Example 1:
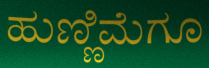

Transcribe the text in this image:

ಹುಣ್ಣಿಮೆಗೂ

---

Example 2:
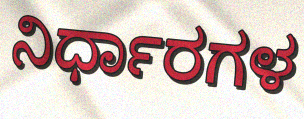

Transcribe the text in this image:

ನಿರ್ಧಾರಗಳ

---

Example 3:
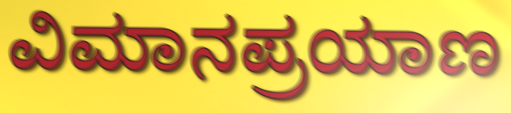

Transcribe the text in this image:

ವಿಮಾನಪ್ರಯಾಣ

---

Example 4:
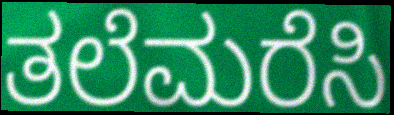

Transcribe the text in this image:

ತಲೆಮರೆಸಿ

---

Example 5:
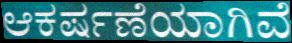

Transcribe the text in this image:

ಆಕರ್ಷಣೆಯಾಗಿವೆ